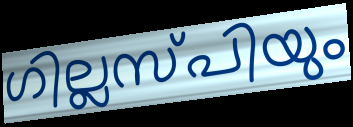
ഗില്ലസ്പിയും